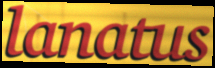
lanatus